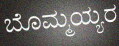
ಬೊಮ್ಮಯ್ಯರ